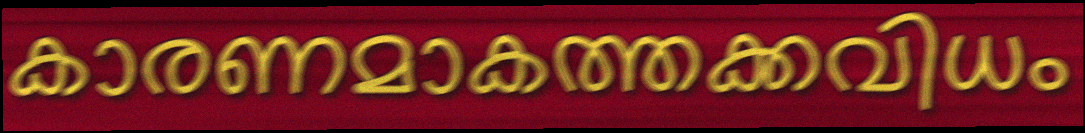
കാരണമാകത്തക്കവിധം